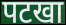
पटखा